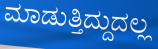
ಮಾಡುತ್ತಿದ್ದುದಲ್ಲ